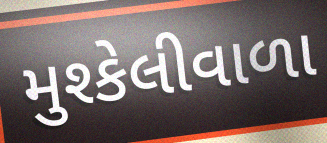
મુશ્કેલીવાળા